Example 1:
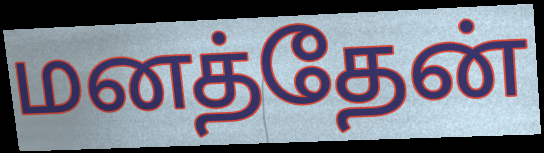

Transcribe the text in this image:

மனத்தேன்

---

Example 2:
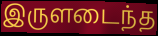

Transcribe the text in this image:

இருளடைந்த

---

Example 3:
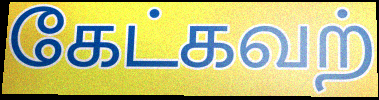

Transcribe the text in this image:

கேட்கவற்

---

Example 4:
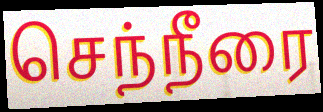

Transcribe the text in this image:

செந்நீரை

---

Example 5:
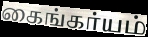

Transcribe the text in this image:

கைங்கர்யம்